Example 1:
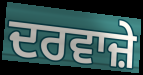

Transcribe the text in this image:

ਦਰਵਾਜ਼ੇ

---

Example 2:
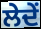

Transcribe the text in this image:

ਲੇਦੇਂ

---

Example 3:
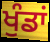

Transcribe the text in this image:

ਖੁੰਡਾਂ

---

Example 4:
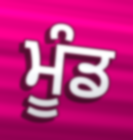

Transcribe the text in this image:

ਮੂੰਡ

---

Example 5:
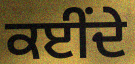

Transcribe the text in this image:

ਕਈਂਦੇ